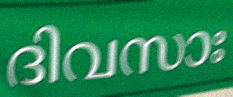
ദിവസാഃ